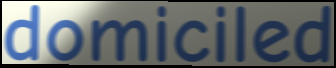
domiciled